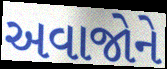
અવાજોને